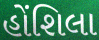
હોંશિલા